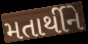
મતાર્થીને